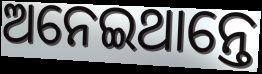
ଅନେଇଥାନ୍ତେ